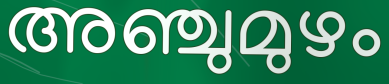
അഞ്ചുമുഴം